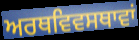
ਅਰਥਵਿਵਸਥਾਵਾਂ